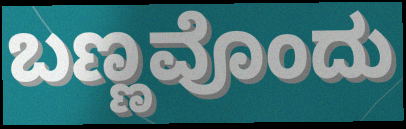
ಬಣ್ಣವೊಂದು